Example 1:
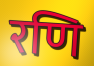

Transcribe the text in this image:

रणि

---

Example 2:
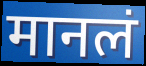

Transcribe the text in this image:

मानलं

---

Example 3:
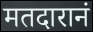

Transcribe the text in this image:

मतदारानं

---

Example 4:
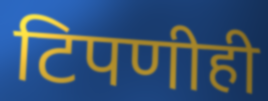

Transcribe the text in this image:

टिपणीही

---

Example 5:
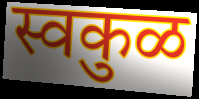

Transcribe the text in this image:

स्वकुळ